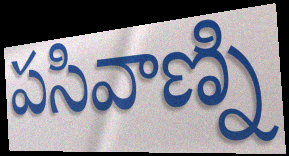
పసివాణ్ని